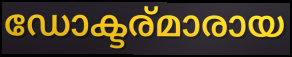
ഡോക്ടര്മാരായ